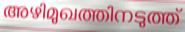
അഴിമുഖത്തിനടുത്ത്